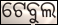
ଟେବୁଲ